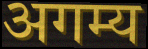
अगम्य